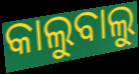
କାଲୁବାଲୁ